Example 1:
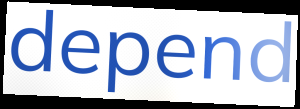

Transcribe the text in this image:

depend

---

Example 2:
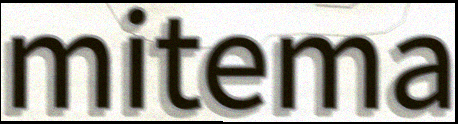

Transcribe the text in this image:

mitema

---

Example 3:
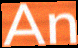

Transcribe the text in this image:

An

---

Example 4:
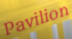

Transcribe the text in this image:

Pavilion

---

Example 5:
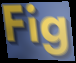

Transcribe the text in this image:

Fig